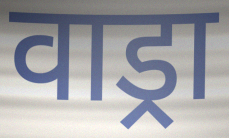
वाड्रा